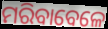
ମରିବାବେଳେ